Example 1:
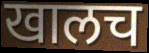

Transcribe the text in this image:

खालच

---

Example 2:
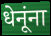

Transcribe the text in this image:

धेनूंना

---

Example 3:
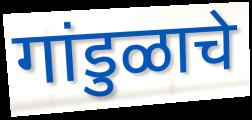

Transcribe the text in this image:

गांडुळाचे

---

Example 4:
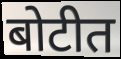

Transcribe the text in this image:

बोटीत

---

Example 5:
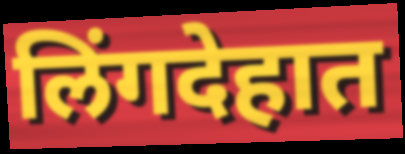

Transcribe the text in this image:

लिंगदेहात